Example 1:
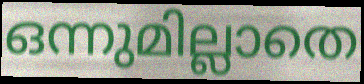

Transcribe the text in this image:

ഒന്നുമില്ലാതെ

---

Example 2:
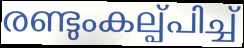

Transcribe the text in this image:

രണ്ടുംകല്പ്പിച്ച്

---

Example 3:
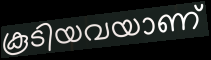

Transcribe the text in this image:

കൂടിയവയാണ്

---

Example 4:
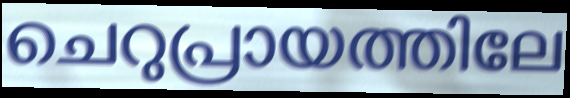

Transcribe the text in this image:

ചെറുപ്രായത്തിലേ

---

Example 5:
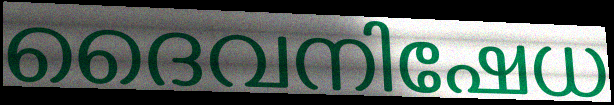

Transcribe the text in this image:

ദൈവനിഷേധ